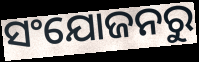
ସଂଯୋଜନରୁ